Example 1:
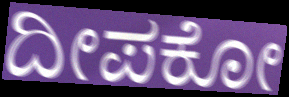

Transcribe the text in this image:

ದೀಪಕೋ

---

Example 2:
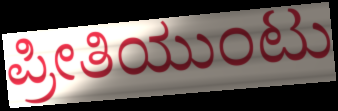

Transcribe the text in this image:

ಪ್ರೀತಿಯುಂಟು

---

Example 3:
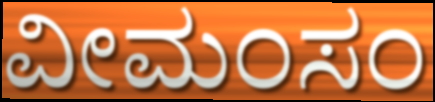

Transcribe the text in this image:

ವೀಮಂಸಂ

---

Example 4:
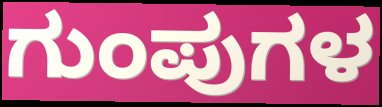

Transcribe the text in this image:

ಗುಂಪುಗಳ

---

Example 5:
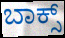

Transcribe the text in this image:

ಬಾಕ್ಸ್